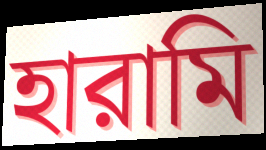
হারামি